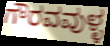
ಗೌರವವುಳ್ಳ